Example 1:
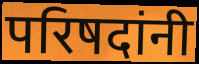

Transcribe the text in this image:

परिषदांनी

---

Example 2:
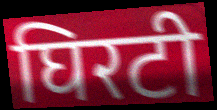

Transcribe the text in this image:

घिरटी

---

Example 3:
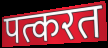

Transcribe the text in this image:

पत्करत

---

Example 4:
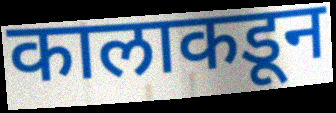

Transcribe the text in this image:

कालाकडून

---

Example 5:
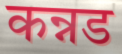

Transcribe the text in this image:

कन्नड